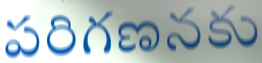
పరిగణనకు